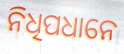
ନିଧିପଧାନେ